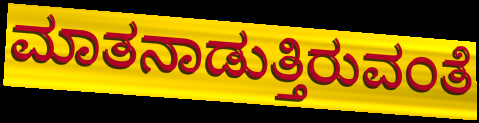
ಮಾತನಾಡುತ್ತಿರುವಂತೆ